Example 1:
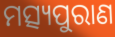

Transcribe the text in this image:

ମତ୍ସ୍ୟପୁରାଣ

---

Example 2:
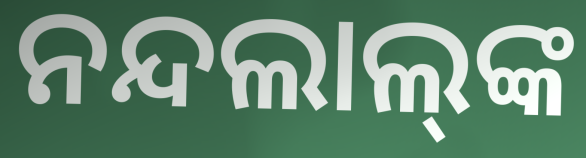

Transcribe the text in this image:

ନନ୍ଦଲାଲ୍‌ଙ୍କ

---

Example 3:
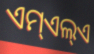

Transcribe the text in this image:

ଏମ୍ଏଲ୍ଏ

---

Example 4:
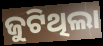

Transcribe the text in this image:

ଜୁଟିଥିଲା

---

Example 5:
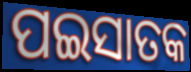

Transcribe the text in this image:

ପଇସାତକ